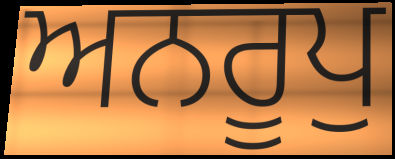
ਅਨਰੂਪੁ